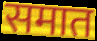
समात